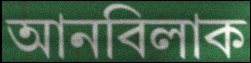
আনবিলাক